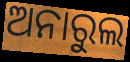
ଅନାରୁଲ